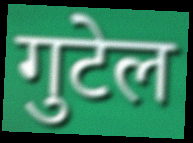
गुटेल